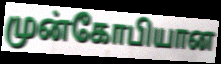
முன்கோபியான